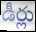
డీర్లు